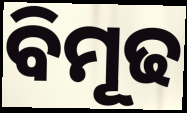
ବିମୂଢ